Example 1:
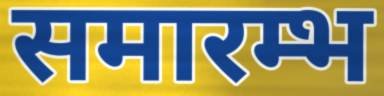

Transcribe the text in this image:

समारम्भ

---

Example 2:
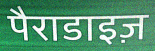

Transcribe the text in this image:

पैराडाइज़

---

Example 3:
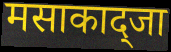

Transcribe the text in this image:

मसाकाद्जा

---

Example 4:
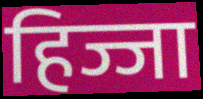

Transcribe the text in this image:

हिज्जा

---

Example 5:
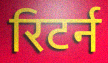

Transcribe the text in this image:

रिटर्न